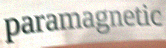
paramagnetic